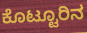
ಕೊಟ್ಟೂರಿನ